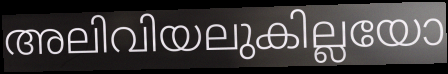
അലിവിയലുകില്ലയോ